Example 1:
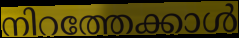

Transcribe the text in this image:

നിറത്തേക്കാൾ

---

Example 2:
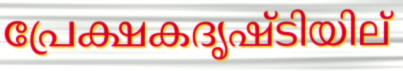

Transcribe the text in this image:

പ്രേക്ഷകദൃഷ്ടിയില്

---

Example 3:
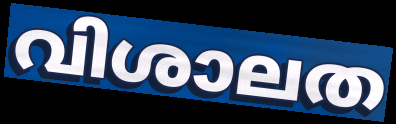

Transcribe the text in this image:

വിശാലത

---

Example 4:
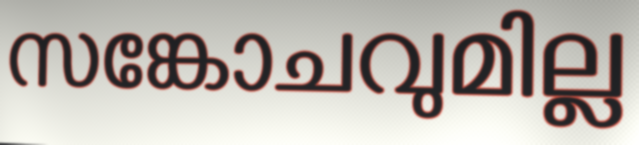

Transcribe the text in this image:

സങ്കോചവുമില്ല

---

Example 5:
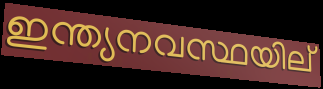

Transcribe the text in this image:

ഇന്ത്യനവസ്ഥയില്